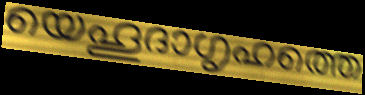
യെഹൂദാഗൃഹത്തെ